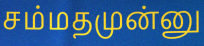
சம்மதமுன்னு